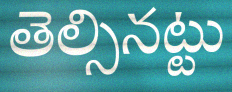
తెల్సినట్టు